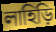
লাহিড়ি